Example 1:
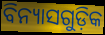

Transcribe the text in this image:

ବିନ୍ୟାସଗୁଡ଼ିକ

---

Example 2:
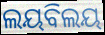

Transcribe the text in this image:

ଲୟବିଲୟ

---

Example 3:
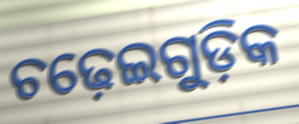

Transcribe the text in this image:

ଚଢ଼େଇଗୁଡ଼ିକ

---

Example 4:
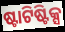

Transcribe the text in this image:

ଷ୍ଟାଟିଷ୍ଟିକ୍ସ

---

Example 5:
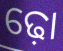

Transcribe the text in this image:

ଢ଼ୋ